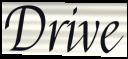
Drive